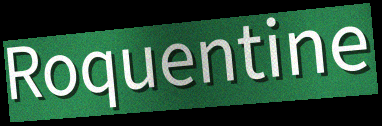
Roquentine